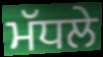
ਮੱਧਲੇ